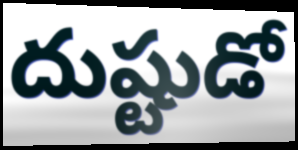
దుష్టుడో